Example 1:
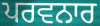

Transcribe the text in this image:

ਪਰਵਨਾਰ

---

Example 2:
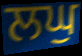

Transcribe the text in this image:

ਲਘੁ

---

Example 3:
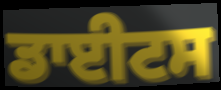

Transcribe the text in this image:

ਡਾਈਟਸ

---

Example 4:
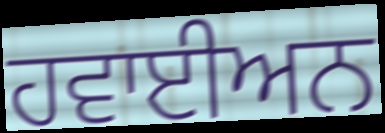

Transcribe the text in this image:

ਹਵਾਈਅਨ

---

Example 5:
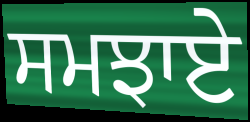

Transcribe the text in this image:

ਸਮਝਾਏ